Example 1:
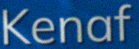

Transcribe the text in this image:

Kenaf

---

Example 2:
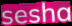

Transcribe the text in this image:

sesha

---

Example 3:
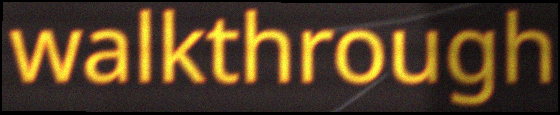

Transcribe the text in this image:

walkthrough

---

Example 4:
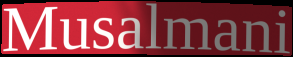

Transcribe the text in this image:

Musalmani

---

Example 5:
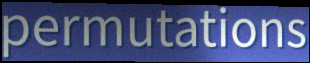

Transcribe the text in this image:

permutations